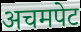
अचमपेट